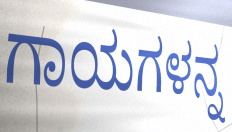
ಗಾಯಗಳನ್ನ